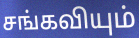
சங்கவியும்